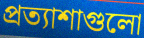
প্রত্যাশাগুলো